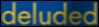
deluded